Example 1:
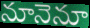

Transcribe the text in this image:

నూనెనూ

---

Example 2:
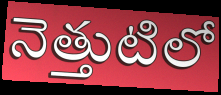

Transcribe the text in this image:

నెత్తుటిలో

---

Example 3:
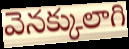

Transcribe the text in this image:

వెనక్కులాగి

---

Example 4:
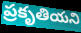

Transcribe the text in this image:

ప్రకృతియని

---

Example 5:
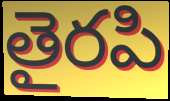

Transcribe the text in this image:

తైరపి